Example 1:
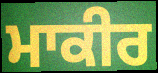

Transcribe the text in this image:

ਮਾਕੀਰ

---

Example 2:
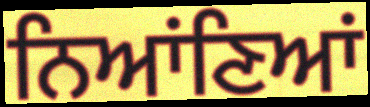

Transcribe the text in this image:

ਨਿਆਂਣਿਆਂ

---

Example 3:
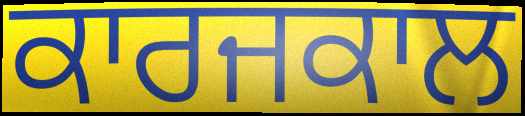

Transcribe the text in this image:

ਕਾਰਜਕਾਲ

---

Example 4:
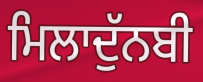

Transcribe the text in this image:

ਮਿਲਾਦੁੱਨਬੀ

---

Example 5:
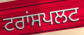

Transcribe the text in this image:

ਟਰਾਂਸਪਲਟ